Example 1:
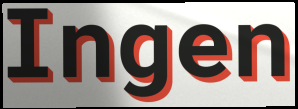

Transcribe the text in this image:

Ingen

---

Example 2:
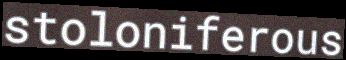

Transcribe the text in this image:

stoloniferous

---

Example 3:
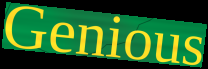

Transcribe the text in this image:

Genious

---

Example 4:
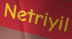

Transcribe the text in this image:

Netriyil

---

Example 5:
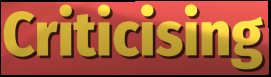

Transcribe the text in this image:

Criticising